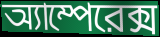
অ্যাম্পেরেক্স